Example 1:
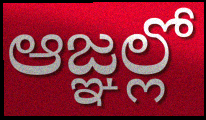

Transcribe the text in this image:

ఆజ్ఞల్లో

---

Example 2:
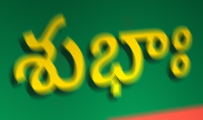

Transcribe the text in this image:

శుభాః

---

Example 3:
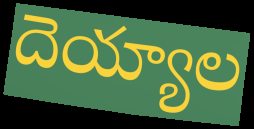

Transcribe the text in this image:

దెయ్యాల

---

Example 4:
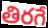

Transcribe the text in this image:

తిరగే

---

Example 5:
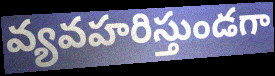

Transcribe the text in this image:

వ్యవహరిస్తుండగా